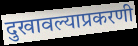
दुखावल्याप्रकरणी